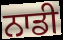
ਨਾਡੀ